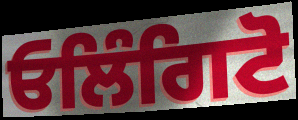
ਓਲਿੰਗਿਟੋ